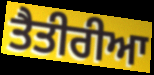
ਤੈਤੀਰੀਆ